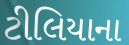
ટીલિયાના